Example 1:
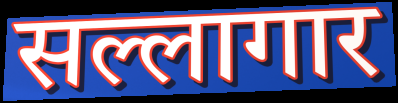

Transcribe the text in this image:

सल्लागार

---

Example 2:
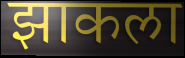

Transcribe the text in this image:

झाकला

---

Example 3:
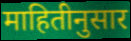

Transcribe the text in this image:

माहितीनुसार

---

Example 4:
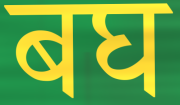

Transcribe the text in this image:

बघ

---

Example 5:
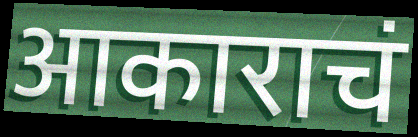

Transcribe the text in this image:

आकाराचं